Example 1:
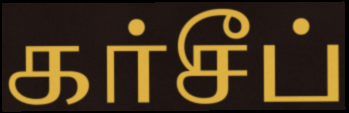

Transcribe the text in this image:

கர்சீப்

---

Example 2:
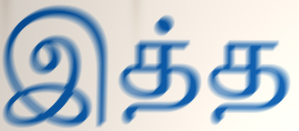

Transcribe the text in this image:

இத்த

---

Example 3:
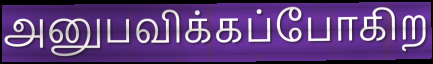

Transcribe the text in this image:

அனுபவிக்கப்போகிற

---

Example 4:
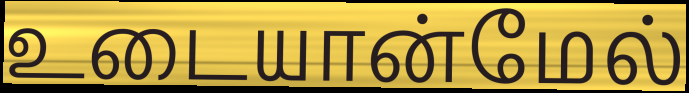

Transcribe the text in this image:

உடையான்மேல்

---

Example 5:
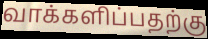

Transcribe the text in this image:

வாக்களிப்பதற்கு